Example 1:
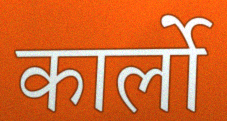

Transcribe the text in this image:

कार्लो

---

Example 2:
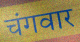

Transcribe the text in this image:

चंगवार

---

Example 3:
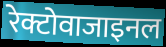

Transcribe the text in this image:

रेक्टोवाजाइनल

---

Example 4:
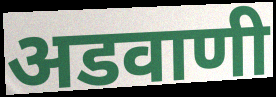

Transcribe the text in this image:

अडवाणी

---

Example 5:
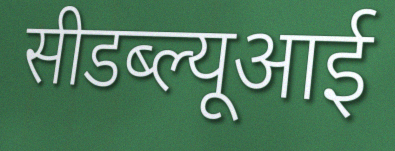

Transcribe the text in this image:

सीडब्ल्यूआई